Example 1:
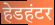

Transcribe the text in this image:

हेडहंटर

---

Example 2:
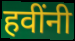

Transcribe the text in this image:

हवींनी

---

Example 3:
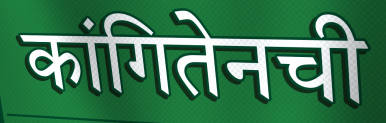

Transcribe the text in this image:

कांगितेनची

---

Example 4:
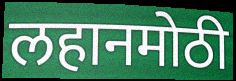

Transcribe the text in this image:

लहानमोठी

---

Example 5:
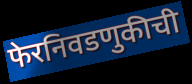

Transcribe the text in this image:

फेरनिवडणुकीची